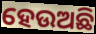
ହେଉଅଛି